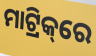
ମାଟ୍ରିକ୍‌ରେ